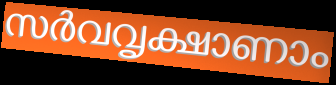
സർവവൃക്ഷാണാം